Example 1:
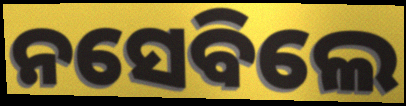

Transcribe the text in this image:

ନସେବିଲେ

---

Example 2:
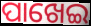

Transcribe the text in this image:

ପାଖେଇ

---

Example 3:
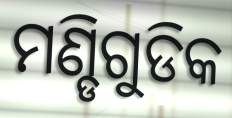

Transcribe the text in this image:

ମଣ୍ଡିଗୁଡିକ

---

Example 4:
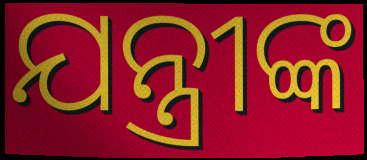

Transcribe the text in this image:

ଯନ୍ତ୍ରୀଙ୍କ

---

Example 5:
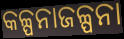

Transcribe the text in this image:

କଳ୍ପନାଜଳ୍ପନା